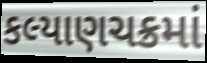
કલ્યાણચક્રમાં